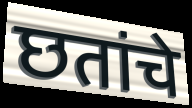
छतांचे